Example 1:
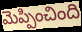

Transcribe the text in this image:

మెప్పించింది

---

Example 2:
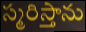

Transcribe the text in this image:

స్మరిస్తాను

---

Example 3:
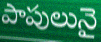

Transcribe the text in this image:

పాపులునై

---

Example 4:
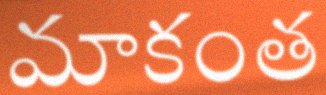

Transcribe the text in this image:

మాకంత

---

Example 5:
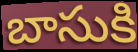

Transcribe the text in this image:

బాసుకి